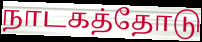
நாடகத்தோடு